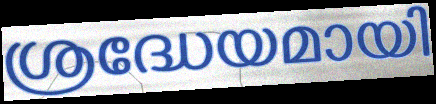
ശ്രദ്ധേയമായി